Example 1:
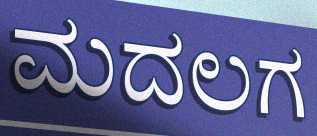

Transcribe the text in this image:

ಮದಲಗ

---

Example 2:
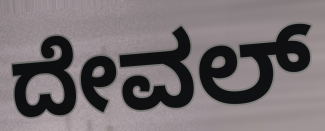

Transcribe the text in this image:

ದೇವಲ್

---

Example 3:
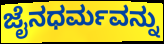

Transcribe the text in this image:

ಜೈನಧರ್ಮವನ್ನು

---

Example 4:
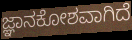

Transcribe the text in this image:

ಜ್ಞಾನಕೋಶವಾಗಿದೆ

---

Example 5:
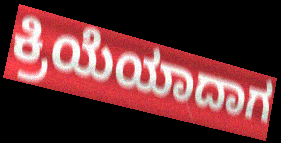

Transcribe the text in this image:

ಕ್ರಿಯೆಯಾದಾಗ